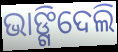
ଭାଙ୍ଗିଦେଲି